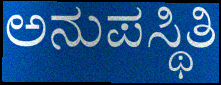
ಅನುಪಸ್ಥಿತಿ